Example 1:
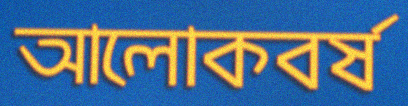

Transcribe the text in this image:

আলোকবর্ষ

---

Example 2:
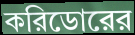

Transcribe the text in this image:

করিডোরের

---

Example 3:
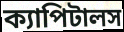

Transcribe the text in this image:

ক্যাপিটালস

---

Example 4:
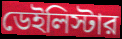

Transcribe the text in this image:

ডেইলিস্টার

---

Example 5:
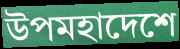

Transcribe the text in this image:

উপমহাদেশে